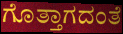
ಗೊತ್ತಾಗದಂತೆ